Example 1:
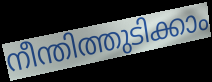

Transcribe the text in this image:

നീന്തിത്തുടിക്കാം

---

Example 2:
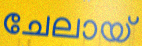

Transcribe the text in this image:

ചേലായ്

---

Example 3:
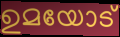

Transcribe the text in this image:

ഉമയോട്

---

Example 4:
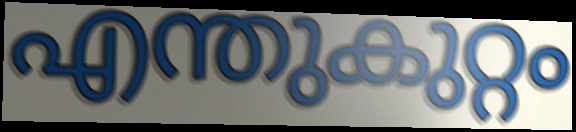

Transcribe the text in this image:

എന്തുകുറ്റം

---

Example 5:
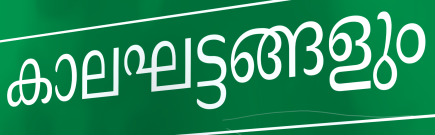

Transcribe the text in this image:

കാലഘട്ടങ്ങളും